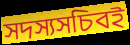
সদস্যসচিবই